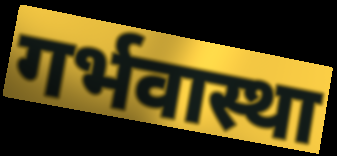
गर्भवास्था